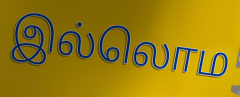
இல்லொம